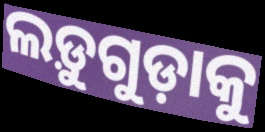
ଲଡ଼ୁଗୁଡ଼ାକୁ